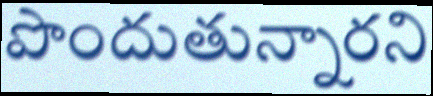
పొందుతున్నారని